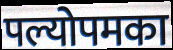
पल्योपमका